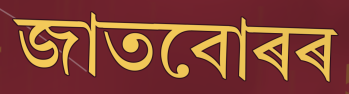
জাতবোৰৰ